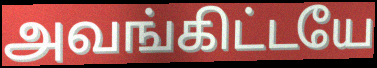
அவங்கிட்டயே